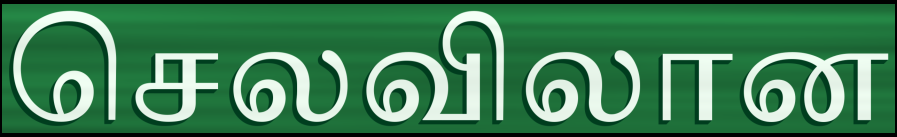
செலவிலான